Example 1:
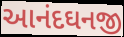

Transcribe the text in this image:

આનંદઘનજી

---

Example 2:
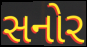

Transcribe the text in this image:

સનોર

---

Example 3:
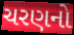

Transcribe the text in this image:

ચરણનો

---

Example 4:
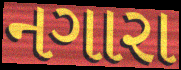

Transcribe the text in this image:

નગારા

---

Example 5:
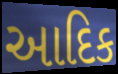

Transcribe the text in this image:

આદિક